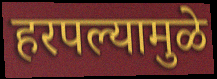
हरपल्यामुळे